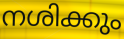
നശിക്കും